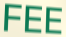
FEE